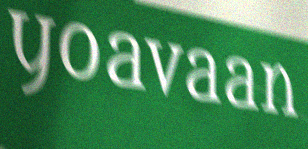
yoavaan